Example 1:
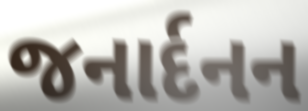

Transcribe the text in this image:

જનાર્દનન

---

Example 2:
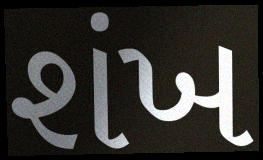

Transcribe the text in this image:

શંખ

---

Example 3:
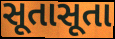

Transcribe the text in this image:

સૂતાસૂતા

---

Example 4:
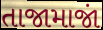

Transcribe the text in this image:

તાજામાજાં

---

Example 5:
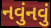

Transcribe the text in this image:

નવુંનવું